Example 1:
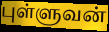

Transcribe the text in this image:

புள்ளுவன்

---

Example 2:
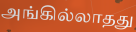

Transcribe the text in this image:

அங்கில்லாதது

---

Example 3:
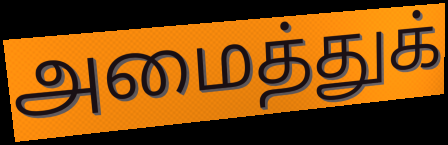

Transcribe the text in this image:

அமைத்துக்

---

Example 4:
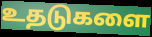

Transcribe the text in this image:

உதடுகளை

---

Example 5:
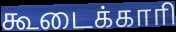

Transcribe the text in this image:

கூடைக்காரி